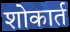
शोकार्त